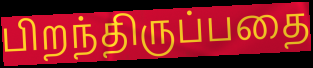
பிறந்திருப்பதை